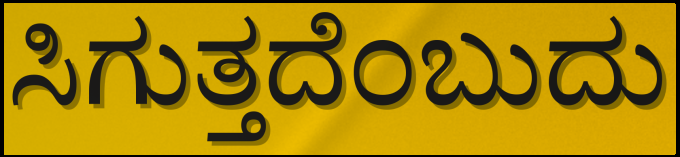
ಸಿಗುತ್ತದೆಂಬುದು